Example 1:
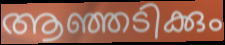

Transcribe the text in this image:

ആഞ്ഞടിക്കും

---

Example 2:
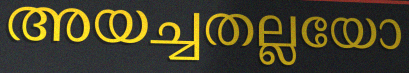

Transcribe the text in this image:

അയച്ചതല്ലയോ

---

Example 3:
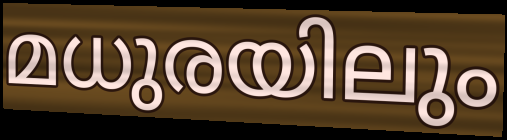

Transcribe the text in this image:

മധുരയിലും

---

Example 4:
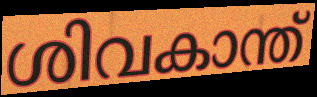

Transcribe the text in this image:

ശിവകാന്ത്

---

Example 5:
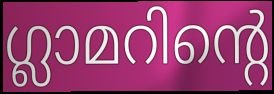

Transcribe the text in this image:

ഗ്ലാമറിന്റെ